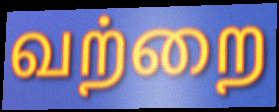
வற்றை